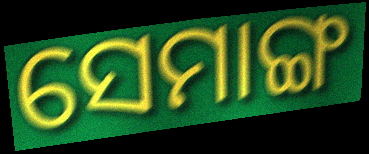
ସେମାଙ୍ଗ